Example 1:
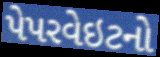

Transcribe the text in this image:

પેપરવેઇટનો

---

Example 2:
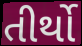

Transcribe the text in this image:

તીર્થો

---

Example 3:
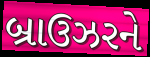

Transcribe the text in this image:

બ્રાઉઝરને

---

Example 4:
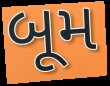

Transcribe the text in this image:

બૂમ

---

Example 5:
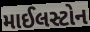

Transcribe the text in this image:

માઈલસ્ટોન